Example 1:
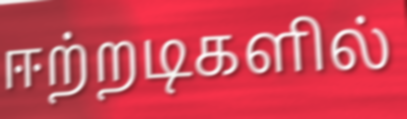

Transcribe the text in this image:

ஈற்றடிகளில்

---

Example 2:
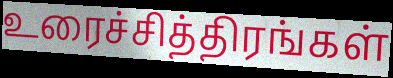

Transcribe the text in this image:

உரைச்சித்திரங்கள்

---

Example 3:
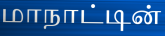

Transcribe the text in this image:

மாநாட்டின்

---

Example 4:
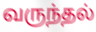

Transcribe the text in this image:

வருந்தல்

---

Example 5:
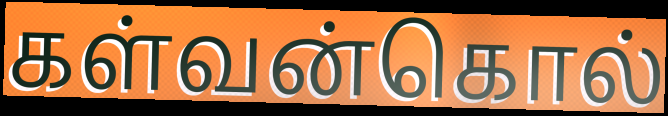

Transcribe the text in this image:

கள்வன்கொல்